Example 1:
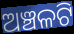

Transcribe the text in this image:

ଅଞ୍ଚଳଟି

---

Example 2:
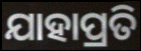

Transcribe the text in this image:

ଯାହାପ୍ରତି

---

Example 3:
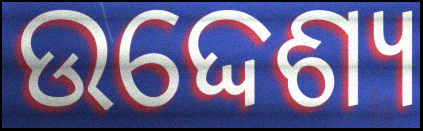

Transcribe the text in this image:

ଉଦ୍ଦେଶ୍ୟ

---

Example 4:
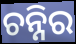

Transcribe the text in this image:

ଚନ୍ନିର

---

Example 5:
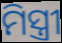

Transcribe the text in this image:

ମିସ୍ତ୍ରୀ